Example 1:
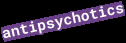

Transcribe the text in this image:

antipsychotics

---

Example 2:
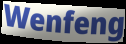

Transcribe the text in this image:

Wenfeng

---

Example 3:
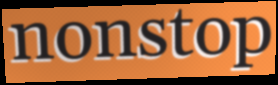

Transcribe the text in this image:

nonstop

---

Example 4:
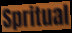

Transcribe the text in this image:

Spritual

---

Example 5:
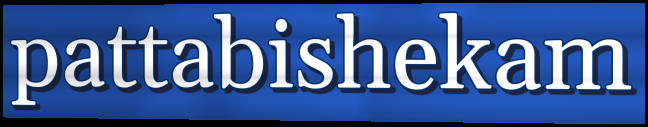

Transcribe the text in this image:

pattabishekam